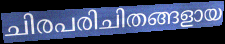
ചിരപരിചിതങ്ങളായ